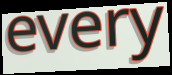
every